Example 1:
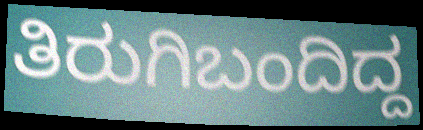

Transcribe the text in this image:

ತಿರುಗಿಬಂದಿದ್ದ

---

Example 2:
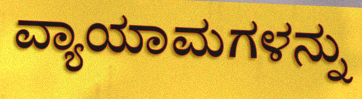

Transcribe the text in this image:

ವ್ಯಾಯಾಮಗಳನ್ನು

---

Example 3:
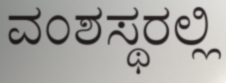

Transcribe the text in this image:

ವಂಶಸ್ಥರಲ್ಲಿ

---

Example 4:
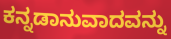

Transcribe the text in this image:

ಕನ್ನಡಾನುವಾದವನ್ನು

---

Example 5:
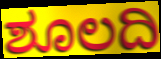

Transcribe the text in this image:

ಶೂಲದಿ